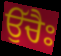
ਉੱਚੈਃ